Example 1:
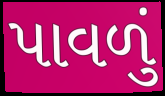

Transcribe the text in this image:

પાવળું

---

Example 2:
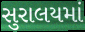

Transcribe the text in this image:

સુરાલયમાં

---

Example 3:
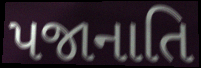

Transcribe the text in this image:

પજાનાતિ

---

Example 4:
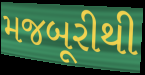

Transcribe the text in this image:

મજબૂરીથી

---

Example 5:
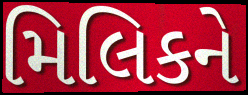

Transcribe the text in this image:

મિલિકને